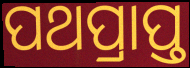
ପଥପ୍ରାପ୍ତ